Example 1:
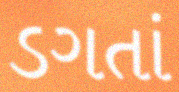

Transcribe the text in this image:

ડગતાં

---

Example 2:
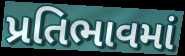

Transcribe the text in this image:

પ્રતિભાવમાં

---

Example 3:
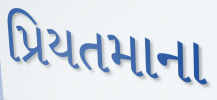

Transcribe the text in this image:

પ્રિયતમાના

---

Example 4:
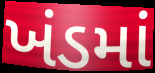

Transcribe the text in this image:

ખંડમાં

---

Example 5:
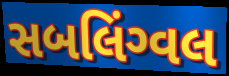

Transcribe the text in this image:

સબલિંગ્વલ